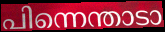
പിന്നെന്താടാ